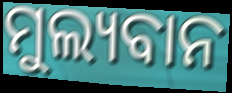
ମୁଲ୍ୟବାନ